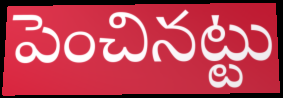
పెంచినట్టు